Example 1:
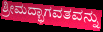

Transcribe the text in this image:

ಶ್ರೀಮದ್ಭಾಗವತವನ್ನು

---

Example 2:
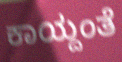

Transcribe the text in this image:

ಕಾಯ್ದಂತೆ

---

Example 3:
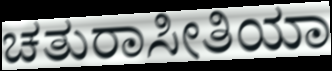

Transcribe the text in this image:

ಚತುರಾಸೀತಿಯಾ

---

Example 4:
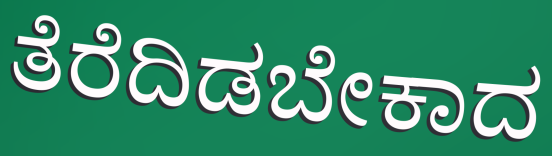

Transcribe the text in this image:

ತೆರೆದಿಡಬೇಕಾದ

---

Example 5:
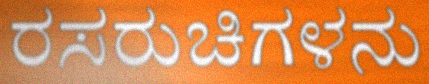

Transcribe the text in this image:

ರಸರುಚಿಗಳನು